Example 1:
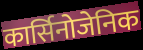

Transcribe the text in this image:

कार्सिनोजेनिक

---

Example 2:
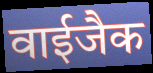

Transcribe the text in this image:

वाईजैक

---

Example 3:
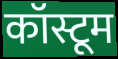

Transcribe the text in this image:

कॉस्टूम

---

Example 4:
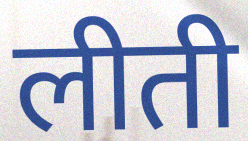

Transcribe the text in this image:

लीती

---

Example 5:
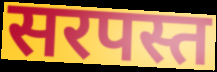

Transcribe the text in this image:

सरपस्त